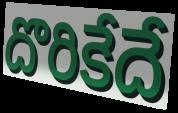
దొరికేదే